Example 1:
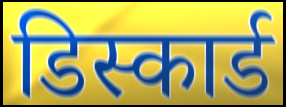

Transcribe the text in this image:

डिस्कार्ड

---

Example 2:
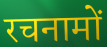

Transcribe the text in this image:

रचनामों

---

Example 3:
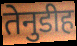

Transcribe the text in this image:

तेनुडीह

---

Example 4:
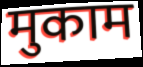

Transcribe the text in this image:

मुकाम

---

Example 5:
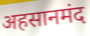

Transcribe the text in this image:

अहसानमंद